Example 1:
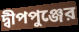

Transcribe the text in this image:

দ্বীপপুঞ্জের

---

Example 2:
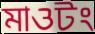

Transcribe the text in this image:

মাওটং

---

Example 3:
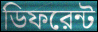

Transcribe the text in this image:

ডিফরেন্ট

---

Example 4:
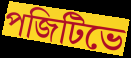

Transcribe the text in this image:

পজিটিভে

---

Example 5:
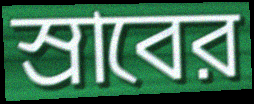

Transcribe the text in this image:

স্রাবের